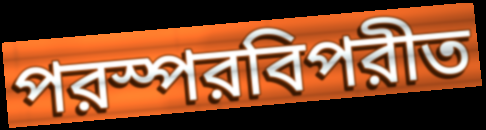
পরস্পরবিপরীত